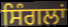
ਸਿੰਗਲਾਂ